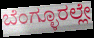
ಬೆಂಗ್ಳೂರಲ್ಲೇ